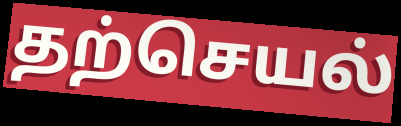
தற்செயல்